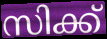
സിക്ക്